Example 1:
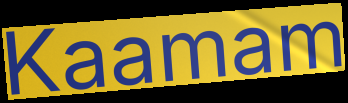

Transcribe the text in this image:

Kaamam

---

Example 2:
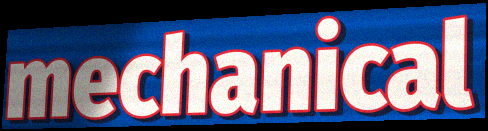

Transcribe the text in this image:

mechanical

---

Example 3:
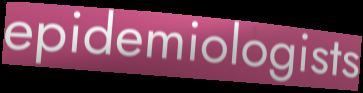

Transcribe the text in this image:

epidemiologists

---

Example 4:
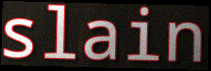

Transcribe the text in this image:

slain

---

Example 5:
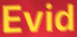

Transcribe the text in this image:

Evid